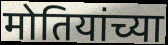
मोतियांच्या